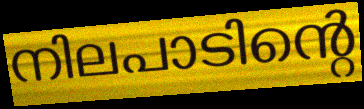
നിലപാടിന്റെ